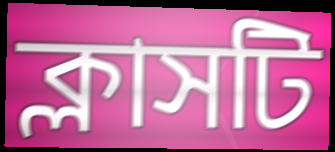
ক্লাসটি